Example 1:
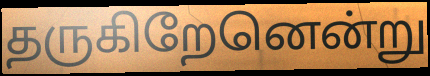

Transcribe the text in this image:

தருகிறேனென்று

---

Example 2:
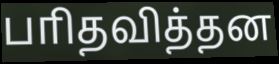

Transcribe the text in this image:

பரிதவித்தன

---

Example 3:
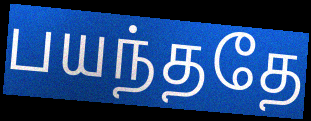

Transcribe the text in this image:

பயந்ததே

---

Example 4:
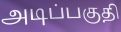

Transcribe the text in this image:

அடிப்பகுதி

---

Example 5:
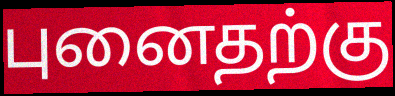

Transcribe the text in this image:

புனைதற்கு